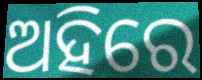
ଅହିରେ